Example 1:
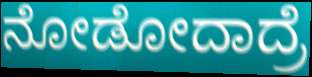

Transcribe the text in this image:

ನೋಡೋದಾದ್ರೆ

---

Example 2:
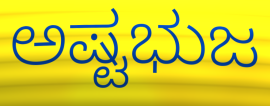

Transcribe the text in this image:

ಅಷ್ಟಭುಜ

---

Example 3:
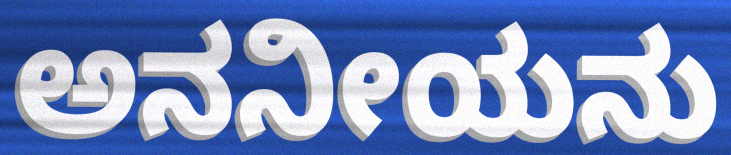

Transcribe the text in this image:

ಅನನೀಯನು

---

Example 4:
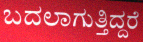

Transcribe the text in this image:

ಬದಲಾಗುತ್ತಿದ್ದರೆ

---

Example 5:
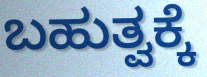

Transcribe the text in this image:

ಬಹುತ್ವಕ್ಕೆ